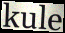
kule